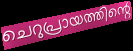
ചെറുപ്രായത്തിന്റെ